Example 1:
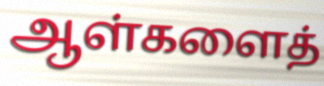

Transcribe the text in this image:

ஆள்களைத்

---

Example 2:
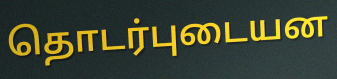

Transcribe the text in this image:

தொடர்புடையன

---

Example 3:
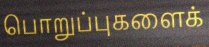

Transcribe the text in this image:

பொறுப்புகளைக்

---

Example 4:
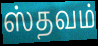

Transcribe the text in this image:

ஸ்தவம்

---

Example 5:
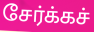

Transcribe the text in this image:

சேர்க்கச்